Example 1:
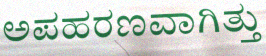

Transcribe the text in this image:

ಅಪಹರಣವಾಗಿತ್ತು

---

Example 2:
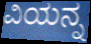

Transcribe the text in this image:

ವಿಯನ್ನ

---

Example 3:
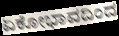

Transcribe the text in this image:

ಏಕೋಭಾವದಿಂದ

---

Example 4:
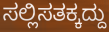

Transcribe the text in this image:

ಸಲ್ಲಿಸತಕ್ಕದ್ದು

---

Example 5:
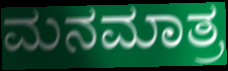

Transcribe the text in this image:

ಮನಮಾತ್ರ